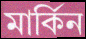
মাৰ্কিন